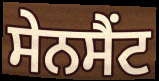
ਸੇਨਸੈਂਟ